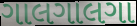
ગાલગાલગા